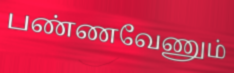
பண்ணவேணும்